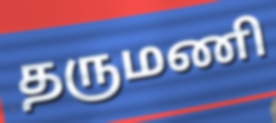
தருமணி